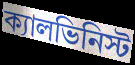
ক্যালভিনিস্ট